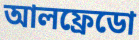
আলফ্রেডো